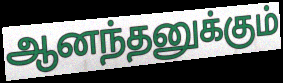
ஆனந்தனுக்கும்